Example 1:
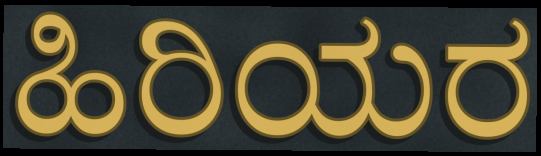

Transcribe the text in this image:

ಹಿರಿಯರ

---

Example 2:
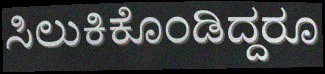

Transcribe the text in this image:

ಸಿಲುಕಿಕೊಂಡಿದ್ದರೂ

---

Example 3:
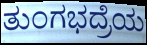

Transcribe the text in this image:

ತುಂಗಭದ್ರೆಯ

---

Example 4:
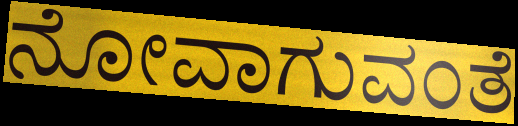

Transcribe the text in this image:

ನೋವಾಗುವಂತೆ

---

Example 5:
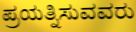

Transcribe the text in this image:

ಪ್ರಯತ್ನಿಸುವವರು